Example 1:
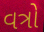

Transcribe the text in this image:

વત્રો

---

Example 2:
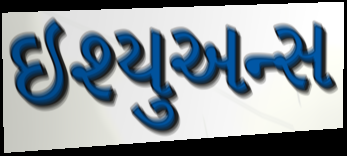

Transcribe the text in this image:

ઇશ્યુઅન્સ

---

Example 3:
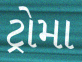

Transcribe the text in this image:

ટ્રોમા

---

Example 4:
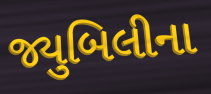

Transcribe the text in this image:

જ્યુબિલીના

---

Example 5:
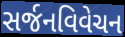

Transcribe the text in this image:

સર્જનવિવેચન